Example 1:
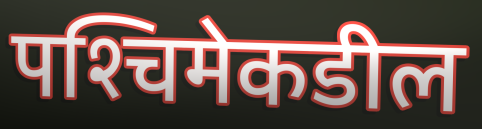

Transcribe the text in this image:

पश्चिमेकडील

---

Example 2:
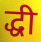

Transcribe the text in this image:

द्धी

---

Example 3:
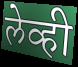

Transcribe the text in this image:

लेव्ही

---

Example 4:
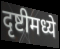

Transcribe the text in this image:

दृष्टीमध्ये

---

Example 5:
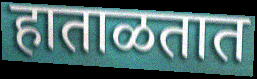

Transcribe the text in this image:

हाताळतात